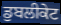
ਡੁਬਲੀਕੇਟ